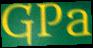
GPa